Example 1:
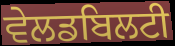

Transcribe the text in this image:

ਵੇਲਡਬਿਲਟੀ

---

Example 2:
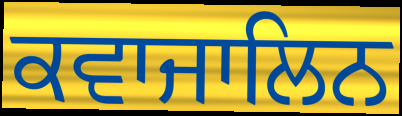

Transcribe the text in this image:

ਕਵਾਜਾਲਿਨ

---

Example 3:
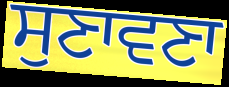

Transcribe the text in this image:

ਸੁਣਾਵਣਾ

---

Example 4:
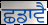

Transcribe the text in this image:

ਛਡਾਵੈ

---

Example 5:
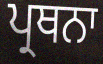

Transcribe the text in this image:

ਪ੍ਰਥਨਾ